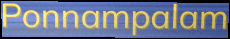
Ponnampalam